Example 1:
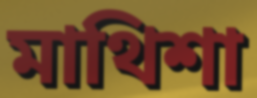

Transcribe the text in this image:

মাথিশা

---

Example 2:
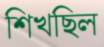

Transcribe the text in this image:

শিখছিল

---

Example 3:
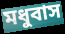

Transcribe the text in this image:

মধুবাস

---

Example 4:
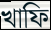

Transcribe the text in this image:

খাফি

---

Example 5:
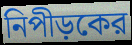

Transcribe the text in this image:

নিপীড়কের